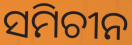
ସମିଚୀନ